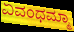
ಏವಂಧಮ್ಮಾ